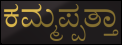
ಕಮ್ಮಪ್ಪತ್ತಾ